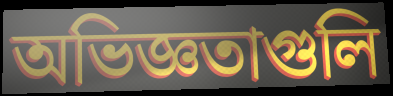
অভিজ্ঞতাগুলি